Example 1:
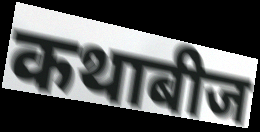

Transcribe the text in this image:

कथाबीज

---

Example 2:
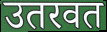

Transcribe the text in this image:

उतरवत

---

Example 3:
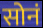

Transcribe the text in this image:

सोनं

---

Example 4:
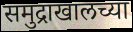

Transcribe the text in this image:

समुद्राखालच्या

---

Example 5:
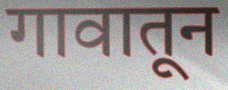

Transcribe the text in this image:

गावातून